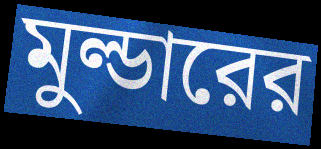
মুল্ডারের